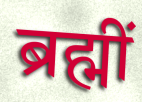
ब्रह्मीं